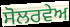
ਸੋਲਰਵੇਅ